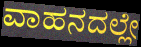
ವಾಹನದಲ್ಲೇ